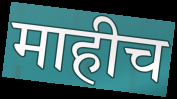
माहीच